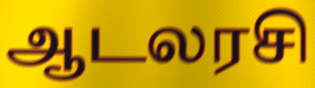
ஆடலரசி